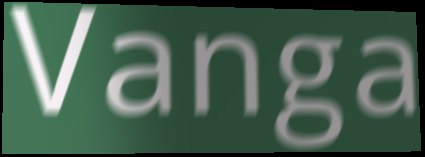
Vanga